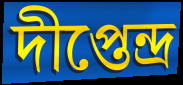
দীপ্তেন্দ্র